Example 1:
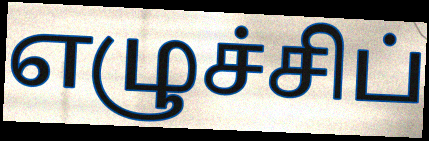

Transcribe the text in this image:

எழுச்சிப்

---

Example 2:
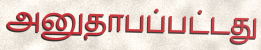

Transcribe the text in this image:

அனுதாபப்பட்டது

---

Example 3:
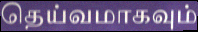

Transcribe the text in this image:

தெய்வமாகவும்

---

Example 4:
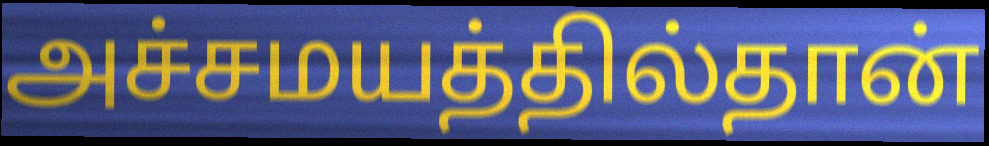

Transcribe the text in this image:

அச்சமயத்தில்தான்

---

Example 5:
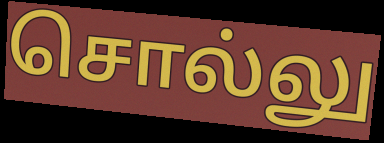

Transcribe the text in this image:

சொல்லு